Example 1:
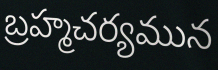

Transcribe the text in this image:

బ్రహ్మచర్యమున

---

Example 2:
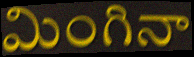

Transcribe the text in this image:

మింగినా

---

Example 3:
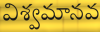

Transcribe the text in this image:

విశ్వమానవ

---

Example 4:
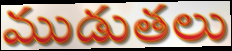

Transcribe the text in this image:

ముడుతలు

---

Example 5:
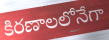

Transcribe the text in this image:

కిరణాలలోనేగా